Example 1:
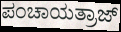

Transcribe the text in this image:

ಪಂಚಾಯತ್ರಾಜ್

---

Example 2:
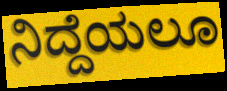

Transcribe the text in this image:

ನಿದ್ದೆಯಲೂ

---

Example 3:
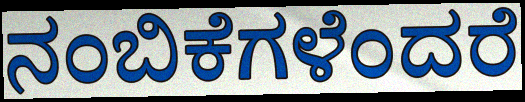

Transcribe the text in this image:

ನಂಬಿಕೆಗಳೆಂದರೆ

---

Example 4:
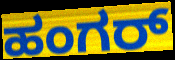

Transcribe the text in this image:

ಹಂಗರ್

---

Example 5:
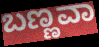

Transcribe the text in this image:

ಬಣ್ಣವಾ